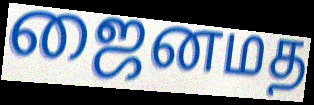
ஜைனமத